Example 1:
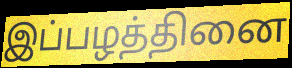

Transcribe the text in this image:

இப்பழத்தினை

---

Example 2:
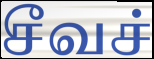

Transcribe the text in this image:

சீவச்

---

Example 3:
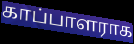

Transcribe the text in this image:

காப்பாளராக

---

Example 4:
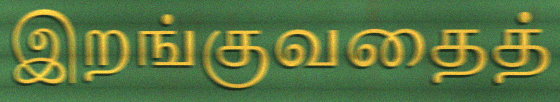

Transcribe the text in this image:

இறங்குவதைத்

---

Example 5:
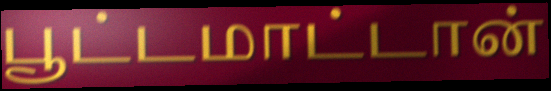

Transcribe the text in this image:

பூட்டமாட்டான்